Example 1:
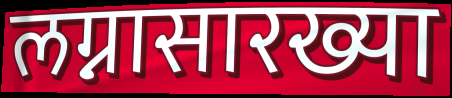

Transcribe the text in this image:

लग्नासारख्या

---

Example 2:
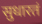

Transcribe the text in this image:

सुधारतं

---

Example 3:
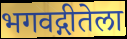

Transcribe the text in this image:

भगवद्गीतेला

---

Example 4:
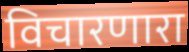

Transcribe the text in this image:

विचारणारा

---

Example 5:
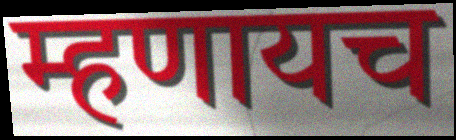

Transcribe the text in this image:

म्हणायच